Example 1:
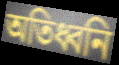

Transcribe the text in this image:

অতিধ্বনি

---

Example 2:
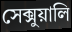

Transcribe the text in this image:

সেক্সুয়ালি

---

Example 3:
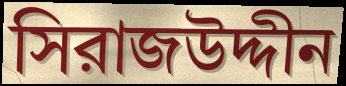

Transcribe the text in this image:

সিরাজউদ্দীন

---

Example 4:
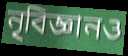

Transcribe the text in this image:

নৃবিজ্ঞানও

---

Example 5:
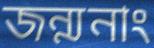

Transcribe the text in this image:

জন্মনাং